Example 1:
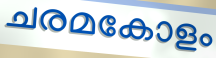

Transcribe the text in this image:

ചരമകോളം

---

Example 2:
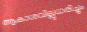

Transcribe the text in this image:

ആകാശവില്ലുധരിച്ചും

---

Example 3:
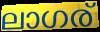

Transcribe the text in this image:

ലാഗര്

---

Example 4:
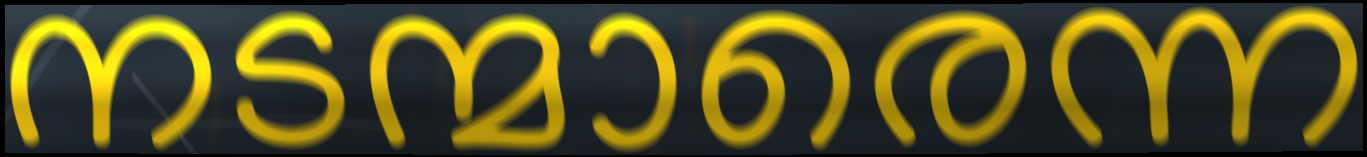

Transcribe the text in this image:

നടന്മാരെന്ന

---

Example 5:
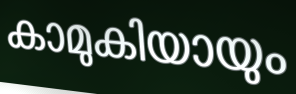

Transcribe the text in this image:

കാമുകിയായും